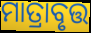
ମାତ୍ରାବୃତ୍ତ